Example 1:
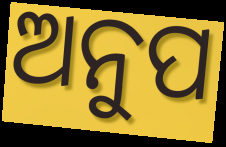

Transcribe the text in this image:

ଅନୁପ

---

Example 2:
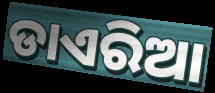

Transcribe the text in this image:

ଡାଏରିଆ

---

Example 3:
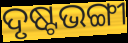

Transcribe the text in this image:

ଦୃଷ୍ଟଭଙ୍ଗୀ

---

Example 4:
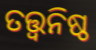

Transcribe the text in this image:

ତତ୍ତ୍ୱନିଷ୍ଠ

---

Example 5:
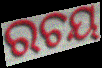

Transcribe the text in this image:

ରଚୟ